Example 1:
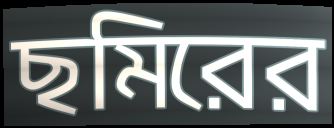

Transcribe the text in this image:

ছমিরের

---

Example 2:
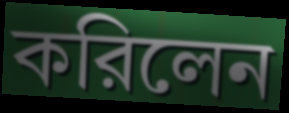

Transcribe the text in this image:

করিলেন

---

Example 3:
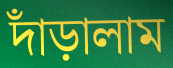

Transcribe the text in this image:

দাঁড়ালাম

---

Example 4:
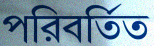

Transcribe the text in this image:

পরিবর্তিত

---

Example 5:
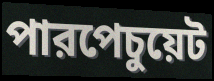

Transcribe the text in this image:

পারপেচুয়েট